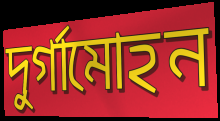
দুর্গামোহন